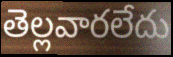
తెల్లవారలేదు